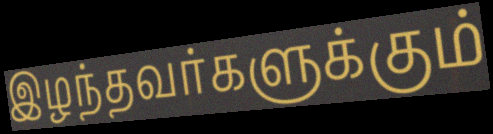
இழந்தவர்களுக்கும்